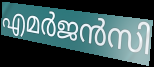
എമർജൻസി